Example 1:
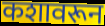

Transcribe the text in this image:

कशावरून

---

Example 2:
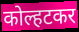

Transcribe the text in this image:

कोल्हटकर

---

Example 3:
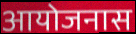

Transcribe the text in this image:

आयोजनास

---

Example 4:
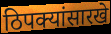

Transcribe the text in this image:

ठिपक्यांसारखे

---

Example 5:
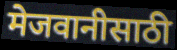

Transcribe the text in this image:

मेजवानीसाठी